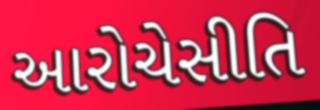
આરોચેસીતિ